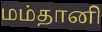
மம்தானி